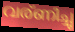
വര്ണിച്ചു